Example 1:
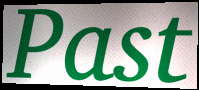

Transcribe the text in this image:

Past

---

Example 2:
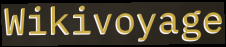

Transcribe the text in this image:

Wikivoyage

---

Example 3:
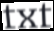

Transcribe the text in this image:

txt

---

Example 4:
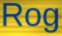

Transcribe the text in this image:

Rog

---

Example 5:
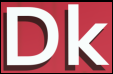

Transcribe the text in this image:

Dk